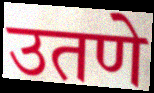
उतणे